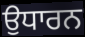
ਉਧਾਰਨ